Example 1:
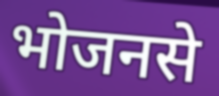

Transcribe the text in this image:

भोजनसे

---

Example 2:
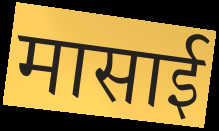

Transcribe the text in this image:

मासाई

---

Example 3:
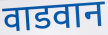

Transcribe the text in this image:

वाडवान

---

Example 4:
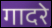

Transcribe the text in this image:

गादरे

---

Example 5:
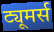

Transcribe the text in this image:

ट्यूमर्स